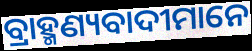
ବ୍ରାହ୍ମଣ୍ୟବାଦୀମାନେ